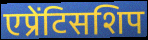
एप्रेंटिसशिप